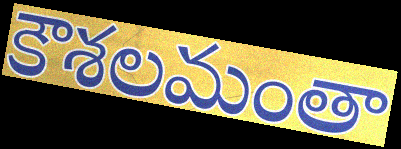
కౌశలమంతా